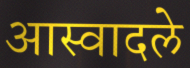
आस्वादले